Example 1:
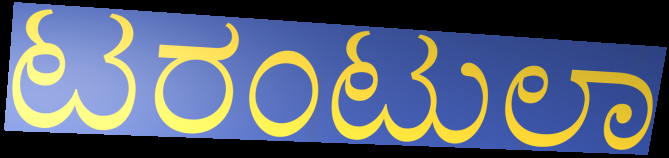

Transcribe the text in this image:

ಟರಂಟುಲಾ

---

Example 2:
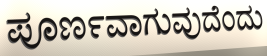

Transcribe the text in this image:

ಪೂರ್ಣವಾಗುವುದೆಂದು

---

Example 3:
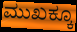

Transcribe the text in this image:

ಮುಖಕ್ಕೂ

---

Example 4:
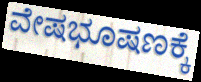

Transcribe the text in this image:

ವೇಷಭೂಷಣಕ್ಕೆ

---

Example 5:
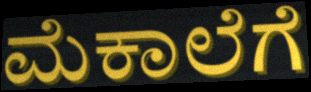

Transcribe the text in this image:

ಮೆಕಾಲೆಗೆ